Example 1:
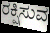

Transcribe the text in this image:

ರಕ್ಷಿಸುವ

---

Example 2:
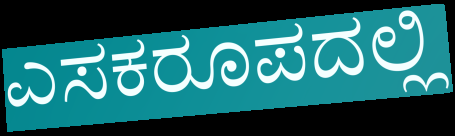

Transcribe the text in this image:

ಎಸಕರೂಪದಲ್ಲಿ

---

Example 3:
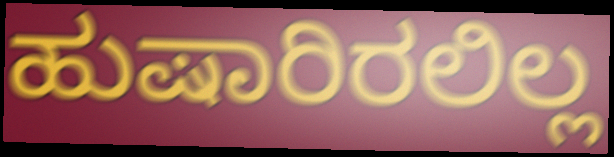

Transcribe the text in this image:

ಹುಷಾರಿರಲಿಲ್ಲ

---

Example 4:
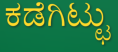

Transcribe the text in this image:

ಕಡೆಗಿಟ್ಟು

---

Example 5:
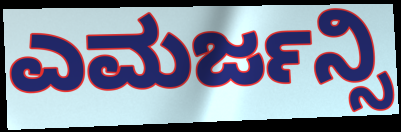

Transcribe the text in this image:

ಎಮರ್ಜನ್ಸಿ